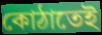
কোঠাতেই